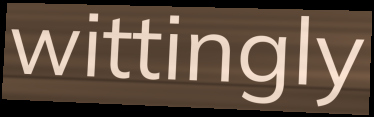
wittingly